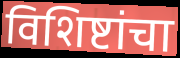
विशिष्टांचा